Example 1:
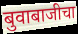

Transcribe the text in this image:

बुवाबाजीचा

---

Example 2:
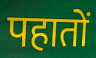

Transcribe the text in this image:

पहातों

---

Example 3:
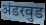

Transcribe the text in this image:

अंडरवुड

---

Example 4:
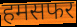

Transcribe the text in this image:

हमसफर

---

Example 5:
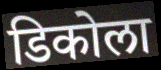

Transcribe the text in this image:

डिकोला